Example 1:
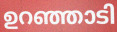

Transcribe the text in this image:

ഉറഞ്ഞാടി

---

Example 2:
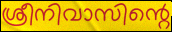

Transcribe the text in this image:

ശ്രീനിവാസിന്റെ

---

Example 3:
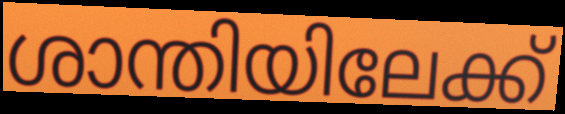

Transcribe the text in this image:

ശാന്തിയിലേക്ക്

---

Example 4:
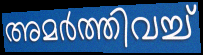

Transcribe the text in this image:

അമർത്തിവച്ച്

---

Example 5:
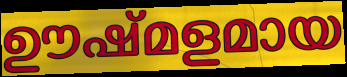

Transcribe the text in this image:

ഊഷ്‌മളമായ